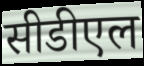
सीडीएल